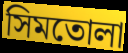
সিমতোলা